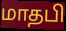
மாதபி